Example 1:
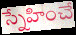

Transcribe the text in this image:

స్నేహించే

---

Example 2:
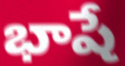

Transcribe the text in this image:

భాషే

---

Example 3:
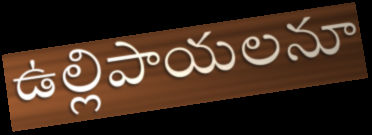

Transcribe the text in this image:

ఉల్లిపాయలనూ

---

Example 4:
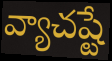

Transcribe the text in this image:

వ్యాచష్టే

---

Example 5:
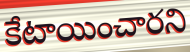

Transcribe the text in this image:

కేటాయించారని